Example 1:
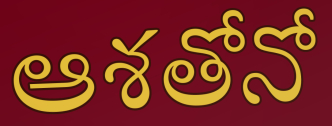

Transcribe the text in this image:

ఆశతోనో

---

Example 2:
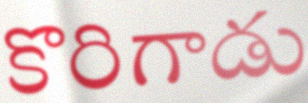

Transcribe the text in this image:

కొరిగాడు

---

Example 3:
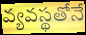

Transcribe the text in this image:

వ్యవస్థతోనే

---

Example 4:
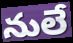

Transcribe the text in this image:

నులే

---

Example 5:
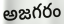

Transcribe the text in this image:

అజగరం